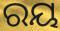
ରୟ